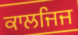
ਕਾਲਜਿਜ